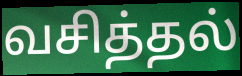
வசித்தல்